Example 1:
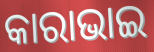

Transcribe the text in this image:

କାରାଭାଇ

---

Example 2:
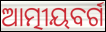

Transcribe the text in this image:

ଆତ୍ମୀୟବର୍ଗ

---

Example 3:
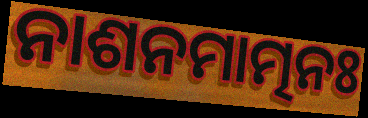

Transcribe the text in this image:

ନାଶନମାତ୍ମନଃ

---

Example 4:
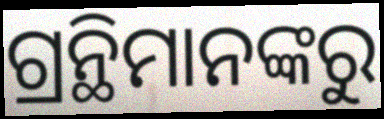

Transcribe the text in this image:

ଗ୍ରନ୍ଥିମାନଙ୍କରୁ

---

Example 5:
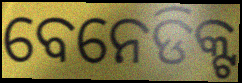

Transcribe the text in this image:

ବେନେଡିକ୍ଟ